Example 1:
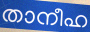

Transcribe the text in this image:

താനീഹ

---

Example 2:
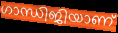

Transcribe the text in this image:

ഗാന്ധിജിയാണ്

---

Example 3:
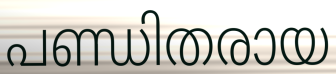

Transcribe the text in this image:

പണ്ഡിതരായ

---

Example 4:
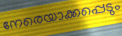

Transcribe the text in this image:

നേരെയാക്കപ്പെടും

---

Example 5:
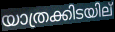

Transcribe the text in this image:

യാത്രക്കിടയില്